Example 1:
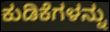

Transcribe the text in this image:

ಕುಡಿಕೆಗಳನ್ನು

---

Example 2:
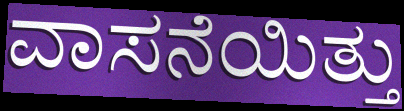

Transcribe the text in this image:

ವಾಸನೆಯಿತ್ತು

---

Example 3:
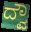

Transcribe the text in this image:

ದ್ವೌ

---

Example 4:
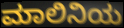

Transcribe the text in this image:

ಮಾಲಿನಿಯ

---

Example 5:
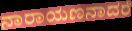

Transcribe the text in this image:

ನಾರಾಯಣನಾದರೆ